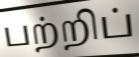
பற்றிப்